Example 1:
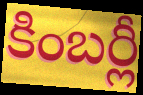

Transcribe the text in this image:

కింబర్లీ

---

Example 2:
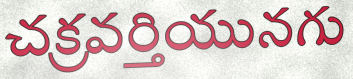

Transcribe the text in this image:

చక్రవర్తియునగు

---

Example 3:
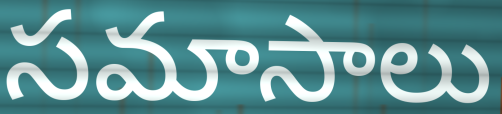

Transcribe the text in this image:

సమాసాలు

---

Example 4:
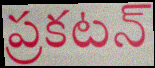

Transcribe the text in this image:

ప్రకటన్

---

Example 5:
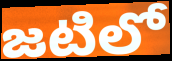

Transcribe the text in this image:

జటిలో